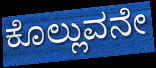
ಕೊಲ್ಲುವನೇ